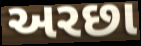
અરછા